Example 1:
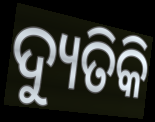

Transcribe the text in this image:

ଦ୍ୟୁତିକି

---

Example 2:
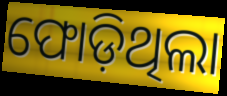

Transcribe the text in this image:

ଫୋଡ଼ିଥିଲା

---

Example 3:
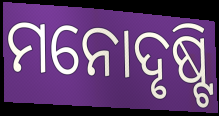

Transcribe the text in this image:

ମନୋଦୃଷ୍ଟି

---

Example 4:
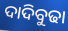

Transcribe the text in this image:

ଦାଦିବୁଢା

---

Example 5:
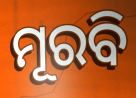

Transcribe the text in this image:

ମୂରବି